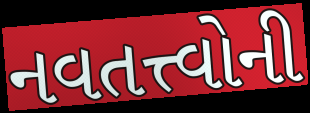
નવતત્ત્વોની